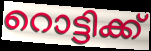
റൊട്ടിക്ക്